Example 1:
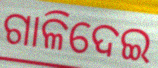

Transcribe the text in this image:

ଗାଳିଦେଇ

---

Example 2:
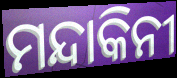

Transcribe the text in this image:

ମନ୍ଦାକିନୀ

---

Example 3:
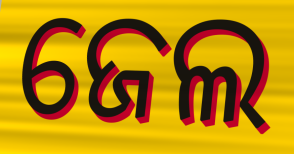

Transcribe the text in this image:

ଜେଲ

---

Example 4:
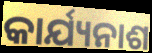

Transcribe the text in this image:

କାର୍ଯ୍ୟନାଶ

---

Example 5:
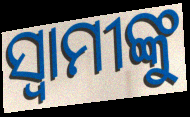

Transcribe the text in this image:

ସ୍ବାମୀଙ୍କୁ